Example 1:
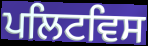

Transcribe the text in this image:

ਪਲਿਟਵਿਸ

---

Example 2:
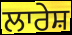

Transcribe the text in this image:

ਲਾਰੇਸ਼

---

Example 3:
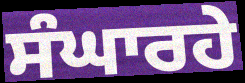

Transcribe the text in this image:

ਸੰਘਾਰਹੇ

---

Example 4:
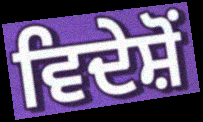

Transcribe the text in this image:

ਵਿਦੇਸ਼ੋਂ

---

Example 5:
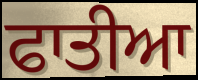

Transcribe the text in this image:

ਫਾਤੀਆ